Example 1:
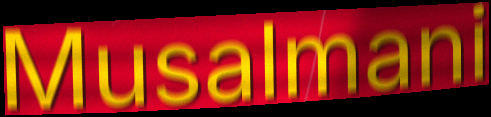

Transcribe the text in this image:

Musalmani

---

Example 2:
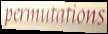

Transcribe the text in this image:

permutations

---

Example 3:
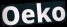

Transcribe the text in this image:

Oeko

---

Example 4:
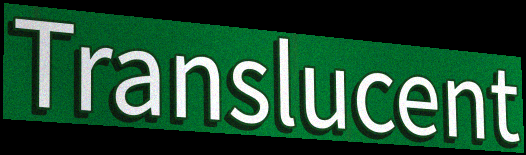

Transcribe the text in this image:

Translucent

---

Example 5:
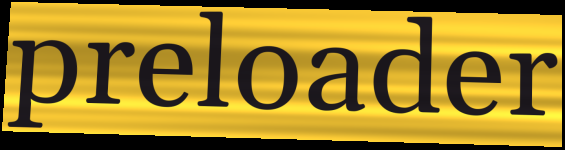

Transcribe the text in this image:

preloader